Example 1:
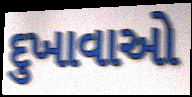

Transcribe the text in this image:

દુખાવાઓ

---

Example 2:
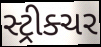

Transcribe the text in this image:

સ્ટ્રીક્ચર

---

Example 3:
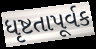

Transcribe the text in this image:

ધૃષ્ટતાપૂર્વક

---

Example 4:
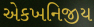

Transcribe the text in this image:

એકખનિજીય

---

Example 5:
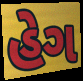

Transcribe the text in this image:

હેગ